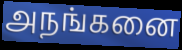
அநங்கனை